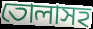
তোলাসহ